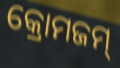
କ୍ରୋମଜମ୍